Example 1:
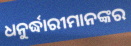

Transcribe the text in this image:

ଧନୁର୍ଦ୍ଧାରୀମାନଙ୍କର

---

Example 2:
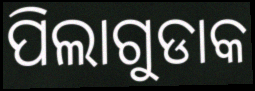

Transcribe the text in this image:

ପିଲାଗୁଡାକ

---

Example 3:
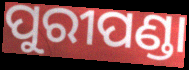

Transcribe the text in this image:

ପୁରୀପଣ୍ଡା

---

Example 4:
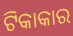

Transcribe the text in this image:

ଟିକାକାର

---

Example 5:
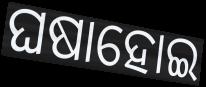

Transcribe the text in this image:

ଘଷାହୋଇ